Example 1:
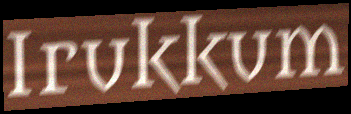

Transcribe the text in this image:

Irukkum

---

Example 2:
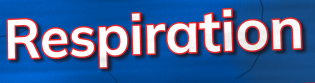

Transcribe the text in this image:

Respiration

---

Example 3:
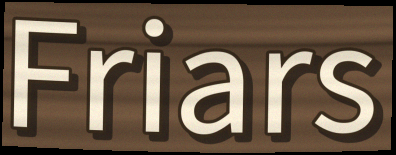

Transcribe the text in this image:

Friars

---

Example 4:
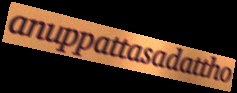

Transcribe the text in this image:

anuppattasadattho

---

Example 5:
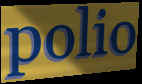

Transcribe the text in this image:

polio